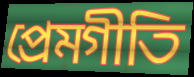
প্রেমগীতি